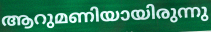
ആറുമണിയായിരുന്നു